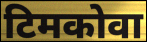
टिमकोवा